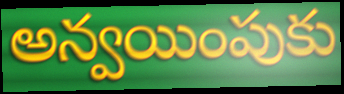
అన్వయింపుకు